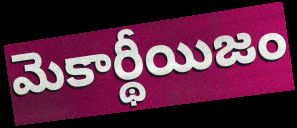
మెకార్థీయిజం